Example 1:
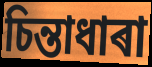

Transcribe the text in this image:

চিন্তাধাৰা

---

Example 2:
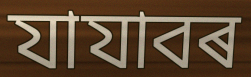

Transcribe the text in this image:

যাযাবৰ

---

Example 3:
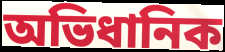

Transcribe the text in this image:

অভিধানিক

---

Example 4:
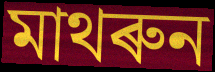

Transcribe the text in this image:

মাথৰুন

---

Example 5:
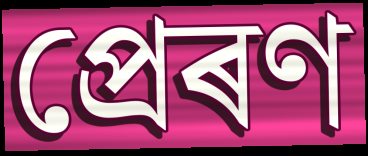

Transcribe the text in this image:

প্ৰেৰণ